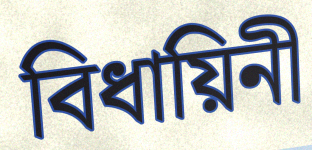
বিধায়িনী